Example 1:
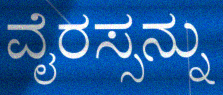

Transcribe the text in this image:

ವೈರಸ್ಸನ್ನು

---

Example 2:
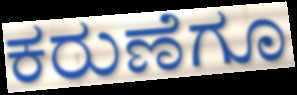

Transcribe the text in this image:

ಕರುಣೆಗೂ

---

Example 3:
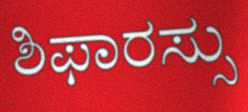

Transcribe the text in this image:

ಶಿಫಾರಸ್ಸು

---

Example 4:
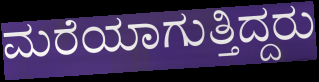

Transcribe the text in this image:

ಮರೆಯಾಗುತ್ತಿದ್ದರು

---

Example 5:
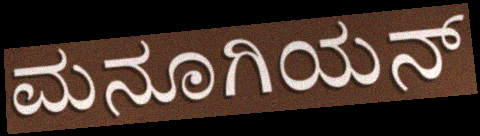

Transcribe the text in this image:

ಮನೂಗಿಯನ್